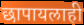
छापायलाही